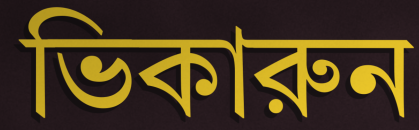
ভিকারুন